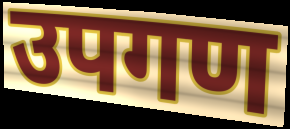
उपगण